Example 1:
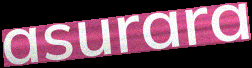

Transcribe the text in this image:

asurara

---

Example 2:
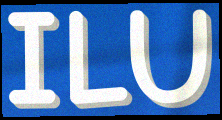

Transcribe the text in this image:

ILU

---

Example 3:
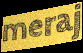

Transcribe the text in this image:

meraj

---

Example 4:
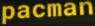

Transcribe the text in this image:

pacman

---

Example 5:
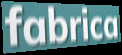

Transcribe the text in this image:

fabrica